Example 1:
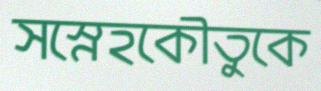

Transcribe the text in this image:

সস্নেহকৌতুকে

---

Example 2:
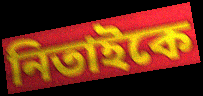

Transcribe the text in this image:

নিতাইকে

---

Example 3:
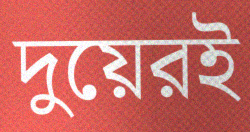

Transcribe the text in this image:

দুয়েরই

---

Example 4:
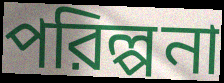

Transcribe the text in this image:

পরিল্পনা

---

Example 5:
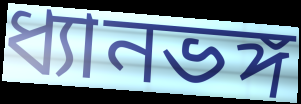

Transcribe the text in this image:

ধ্যানভঙ্গ